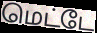
மெட்டே